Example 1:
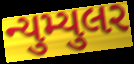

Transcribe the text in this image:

ન્યુમ્યુલર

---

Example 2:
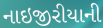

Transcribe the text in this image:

નાઇજીરીયાની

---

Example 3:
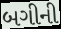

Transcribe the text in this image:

બગીની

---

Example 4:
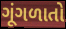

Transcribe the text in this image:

ગૂંગળાતો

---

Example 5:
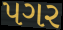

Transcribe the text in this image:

પગર